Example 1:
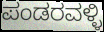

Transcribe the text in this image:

ಪಂಡರವಳ್ಳಿ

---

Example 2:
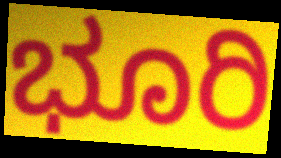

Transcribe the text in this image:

ಭೂರಿ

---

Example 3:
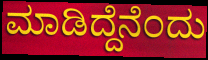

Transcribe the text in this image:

ಮಾಡಿದ್ದೆನೆಂದು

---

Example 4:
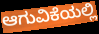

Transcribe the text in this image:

ಆಗುವಿಕೆಯಲ್ಲಿ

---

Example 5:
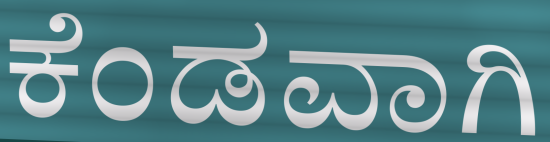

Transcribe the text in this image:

ಕೆಂಡವಾಗಿ